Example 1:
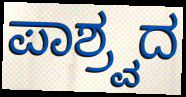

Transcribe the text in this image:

ಪಾಶ್ರ್ವದ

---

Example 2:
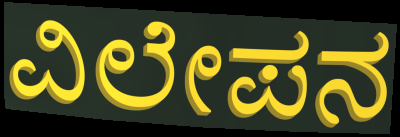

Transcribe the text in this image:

ವಿಲೇಪನ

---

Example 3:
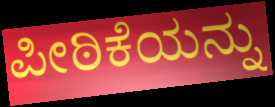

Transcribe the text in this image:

ಪೀಠಿಕೆಯನ್ನು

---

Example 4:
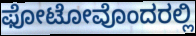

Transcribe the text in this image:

ಫೋಟೋವೊಂದರಲ್ಲಿ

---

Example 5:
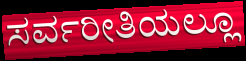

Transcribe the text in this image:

ಸರ್ವರೀತಿಯಲ್ಲೂ